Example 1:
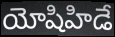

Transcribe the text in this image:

యోషిహిడే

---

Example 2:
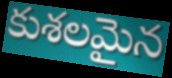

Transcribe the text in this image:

కుశలమైన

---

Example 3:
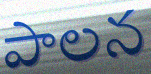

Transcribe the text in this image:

పాలన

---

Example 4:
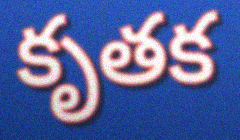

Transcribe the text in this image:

కృతక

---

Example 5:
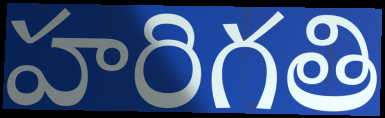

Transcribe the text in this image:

హరిగతి